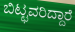
ಬಿಟ್ಟವರಿದ್ದಾರೆ